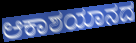
ಆಕಾಶಯಾನದ